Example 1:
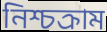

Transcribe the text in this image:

নিশ্চক্রাম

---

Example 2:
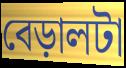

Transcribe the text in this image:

বেড়ালটা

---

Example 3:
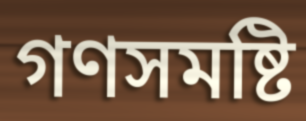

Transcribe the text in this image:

গণসমষ্টি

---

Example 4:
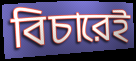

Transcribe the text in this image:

বিচারেই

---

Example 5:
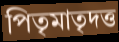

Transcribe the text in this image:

পিতৃমাতৃদত্ত